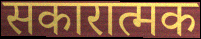
सकारात्मक